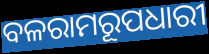
ବଳରାମରୂପଧାରୀ